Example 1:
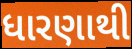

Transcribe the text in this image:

ધારણાથી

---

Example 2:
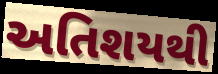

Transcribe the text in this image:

અતિશયથી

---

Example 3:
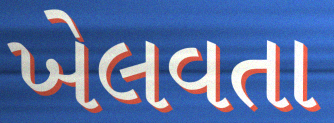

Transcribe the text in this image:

ખેલવતા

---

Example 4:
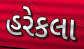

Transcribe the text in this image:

હરેકલા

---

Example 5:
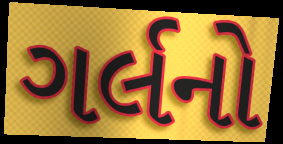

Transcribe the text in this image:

ગર્લનો